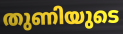
തുണിയുടെ